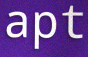
apt